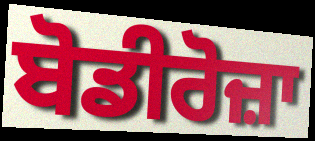
ਬੋਡੀਰੋਜ਼ਾ